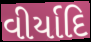
વીર્યાદિ